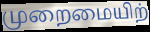
முறைமையிற்